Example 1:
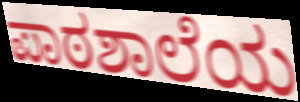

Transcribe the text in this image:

ಪಾಠಶಾಲೆಯ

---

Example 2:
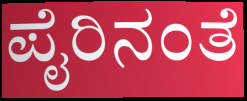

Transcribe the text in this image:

ಪೈರಿನಂತೆ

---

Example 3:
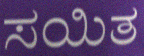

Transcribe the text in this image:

ಸಯಿತ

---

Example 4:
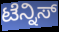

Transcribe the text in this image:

ಟೆನ್ನಿಸ್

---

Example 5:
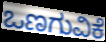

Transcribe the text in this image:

ಒಣಗುವಿಕೆ